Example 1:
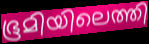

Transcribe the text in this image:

ഭൂമിയിലെത്തി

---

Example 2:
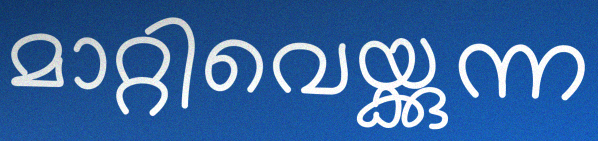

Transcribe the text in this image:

മാറ്റിവെയ്ക്കുന്ന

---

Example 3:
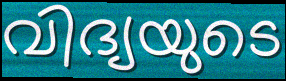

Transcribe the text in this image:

വിദ്യയുടെ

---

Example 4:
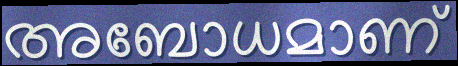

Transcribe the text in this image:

അബോധമാണ്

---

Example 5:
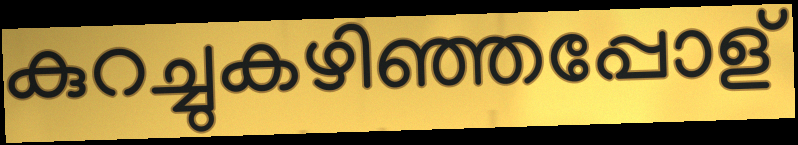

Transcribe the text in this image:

കുറച്ചുകഴിഞ്ഞപ്പോള്